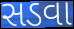
સડવા